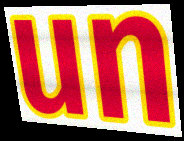
un